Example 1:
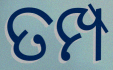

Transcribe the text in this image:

ତମ୍ପ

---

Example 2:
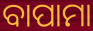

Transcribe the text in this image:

ବାପାମା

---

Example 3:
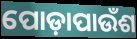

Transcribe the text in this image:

ପୋଡ଼ାପାଉଁଶ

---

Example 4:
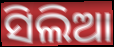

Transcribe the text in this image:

ସିଲିଆ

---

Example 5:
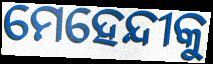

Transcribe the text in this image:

ମେହେନ୍ଦୀକୁ